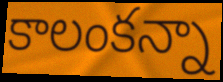
కాలంకన్నా